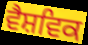
ਵੈਸ਼ਵਿਕ